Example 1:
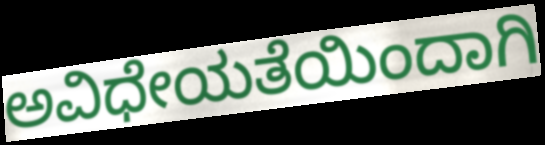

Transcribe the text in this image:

ಅವಿಧೇಯತೆಯಿಂದಾಗಿ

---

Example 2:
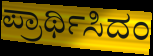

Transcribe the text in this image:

ಪ್ರಾರ್ಥಿಸಿದಂ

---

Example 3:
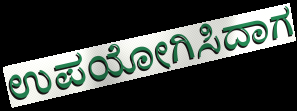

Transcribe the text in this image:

ಉಪಯೋಗಿಸಿದಾಗ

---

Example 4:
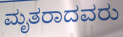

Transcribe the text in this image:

ಮೃತರಾದವರು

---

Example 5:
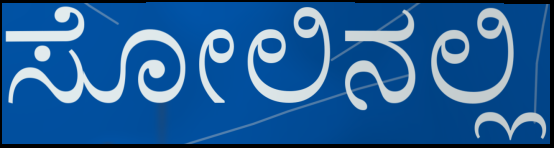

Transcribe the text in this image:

ಸೋಲಿನಲ್ಲಿ